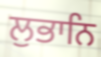
ਲੁਭਾਨਿ